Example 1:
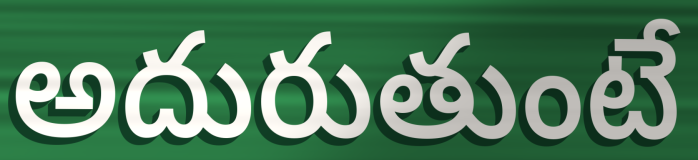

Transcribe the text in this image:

అదురుతుంటే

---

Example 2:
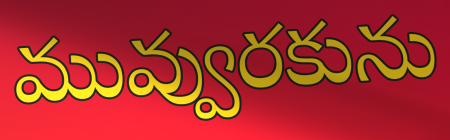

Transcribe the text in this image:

మువ్వురకును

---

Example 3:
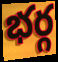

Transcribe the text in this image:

భర్గ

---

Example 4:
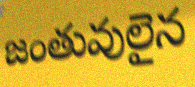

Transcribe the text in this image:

జంతువులైన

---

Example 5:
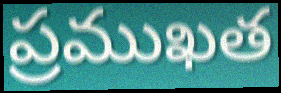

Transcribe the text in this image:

ప్రముఖత